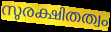
സുരക്ഷിതത്വം